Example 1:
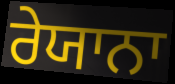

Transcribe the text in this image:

ਰੇਯਾਨਾ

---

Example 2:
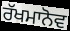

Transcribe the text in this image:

ਰੱਖਮਾਨੋਵ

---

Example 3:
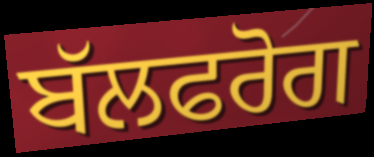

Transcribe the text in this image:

ਬੱਲਫਰੋਗ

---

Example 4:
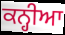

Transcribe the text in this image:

ਕਨ੍ਹੀਆ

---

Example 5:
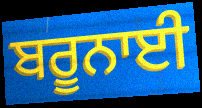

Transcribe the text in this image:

ਬਰੂਨਾਈ